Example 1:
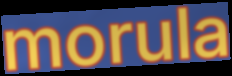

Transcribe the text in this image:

morula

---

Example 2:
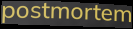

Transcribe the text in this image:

postmortem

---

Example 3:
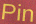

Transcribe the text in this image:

Pin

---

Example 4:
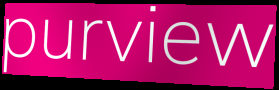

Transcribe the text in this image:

purview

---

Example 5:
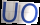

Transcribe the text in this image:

UO